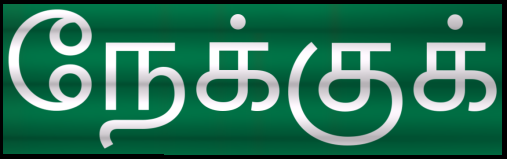
நேக்குக்